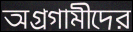
অগ্রগামীদের